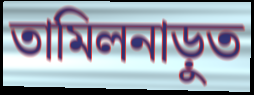
তামিলনাড়ুত